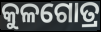
କୁଳଗୋତ୍ର